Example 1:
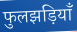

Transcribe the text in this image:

फुलझड़ियाँ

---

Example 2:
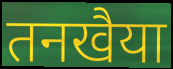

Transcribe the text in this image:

तनखैया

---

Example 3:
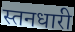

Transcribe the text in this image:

स्तनधारी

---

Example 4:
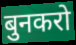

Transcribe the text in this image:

बुनकरो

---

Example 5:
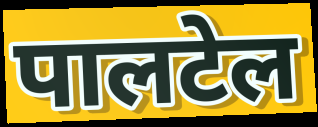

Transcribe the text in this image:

पालटेल